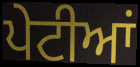
ਪੇਟੀਆਂ